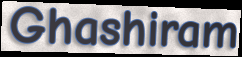
Ghashiram